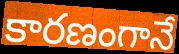
కారణంగానే